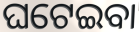
ଘଟେଇବା